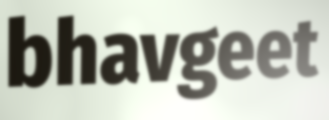
bhavgeet